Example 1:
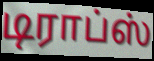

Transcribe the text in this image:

டிராப்ஸ்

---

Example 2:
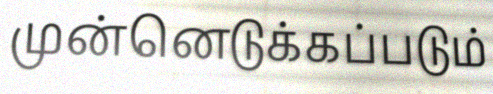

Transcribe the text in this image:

முன்னெடுக்கப்படும்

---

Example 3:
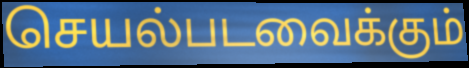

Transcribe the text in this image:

செயல்படவைக்கும்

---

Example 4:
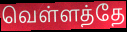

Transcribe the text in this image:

வெள்ளத்தே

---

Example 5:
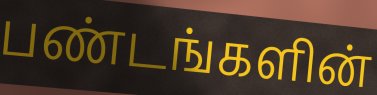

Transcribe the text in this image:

பண்டங்களின்